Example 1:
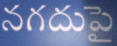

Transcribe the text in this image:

నగదుపై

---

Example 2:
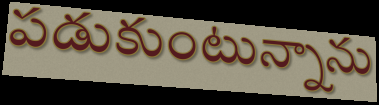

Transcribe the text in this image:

పడుకుంటున్నాను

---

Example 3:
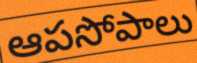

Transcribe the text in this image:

ఆపసోపాలు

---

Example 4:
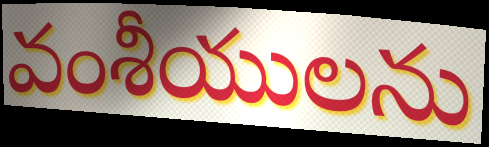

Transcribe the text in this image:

వంశీయులను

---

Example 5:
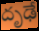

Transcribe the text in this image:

దృఢే